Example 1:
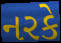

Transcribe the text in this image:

નરકે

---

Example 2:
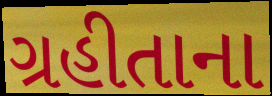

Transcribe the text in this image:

ગ્રહીતાના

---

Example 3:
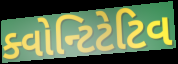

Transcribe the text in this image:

ક્વોન્ટિટેટિવ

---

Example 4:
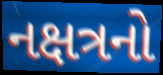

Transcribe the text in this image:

નક્ષત્રનો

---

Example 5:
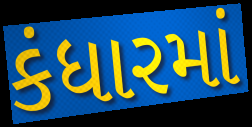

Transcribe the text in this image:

કંધારમાં